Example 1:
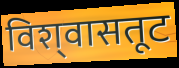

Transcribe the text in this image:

विश्वासतूट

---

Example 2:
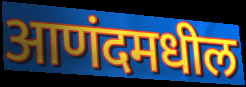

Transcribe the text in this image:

आणंदमधील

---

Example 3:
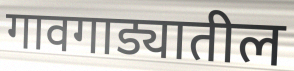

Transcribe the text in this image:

गावगाड्यातील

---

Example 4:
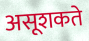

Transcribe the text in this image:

असूशकते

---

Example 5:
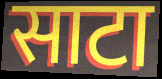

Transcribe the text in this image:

साटा